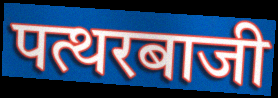
पत्थरबाजी